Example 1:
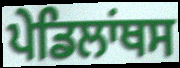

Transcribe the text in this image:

ਪੇਡਿਲਾਂਥਸ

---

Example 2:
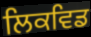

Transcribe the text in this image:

ਲਿਕਵਿਡ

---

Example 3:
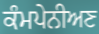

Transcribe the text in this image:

ਕੰਮਪੇਨੀਅਣ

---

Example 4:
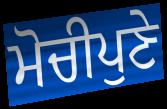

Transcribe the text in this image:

ਮੋਚੀਪੁਣੇ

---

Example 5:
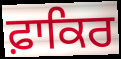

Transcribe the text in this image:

ਫ਼ਾਕਿਰ